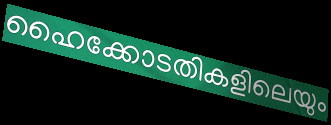
ഹൈക്കോടതികളിലെയും